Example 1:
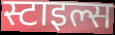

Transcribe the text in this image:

स्टाइल्स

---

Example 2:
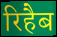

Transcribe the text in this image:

रिहैब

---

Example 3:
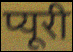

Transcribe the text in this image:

प्यूरी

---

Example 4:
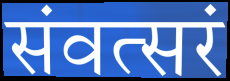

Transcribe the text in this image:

संवत्सरं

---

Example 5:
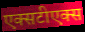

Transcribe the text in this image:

एक्सटीएक्स